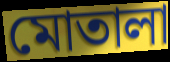
মোতালা